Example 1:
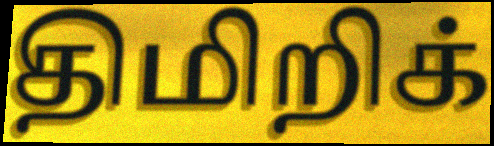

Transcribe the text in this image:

திமிறிக்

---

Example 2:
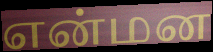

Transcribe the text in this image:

என்மன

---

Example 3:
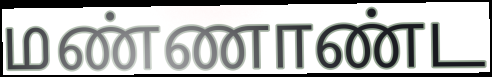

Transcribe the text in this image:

மண்ணாண்ட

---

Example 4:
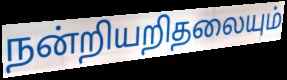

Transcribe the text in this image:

நன்றியறிதலையும்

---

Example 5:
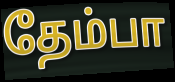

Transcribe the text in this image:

தேம்பா